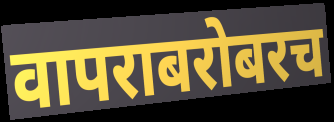
वापराबरोबरच